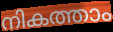
നികത്താം